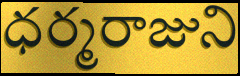
ధర్మరాజుని